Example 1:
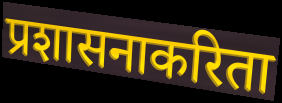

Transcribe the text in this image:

प्रशासनाकरिता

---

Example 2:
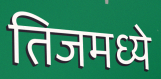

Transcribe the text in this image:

तिजमध्ये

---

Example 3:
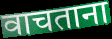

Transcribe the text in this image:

वाचताना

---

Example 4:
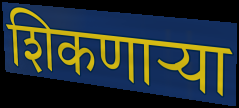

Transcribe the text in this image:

शिकणार्‍या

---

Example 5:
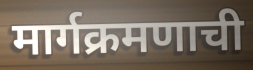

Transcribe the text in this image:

मार्गक्रमणाची